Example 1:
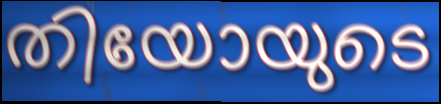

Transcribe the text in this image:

തിയോയുടെ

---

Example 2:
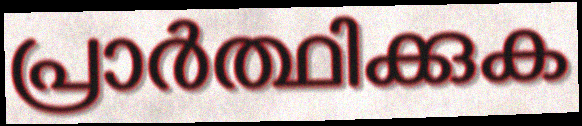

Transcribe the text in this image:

പ്രാർത്ഥിക്കുക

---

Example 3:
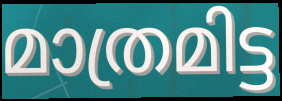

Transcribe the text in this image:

മാത്രമിട്ട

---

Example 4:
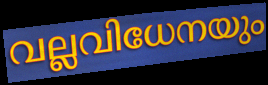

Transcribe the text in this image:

വല്ലവിധേനയും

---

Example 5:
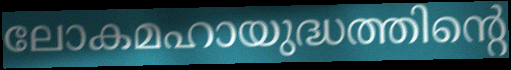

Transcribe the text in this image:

ലോകമഹായുദ്ധത്തിന്റെ